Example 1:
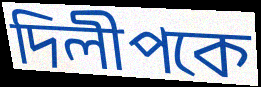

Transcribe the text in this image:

দিলীপকে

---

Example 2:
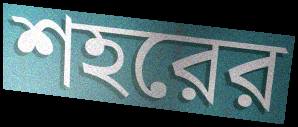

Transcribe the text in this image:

শহরের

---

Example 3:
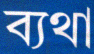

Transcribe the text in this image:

ব্যথা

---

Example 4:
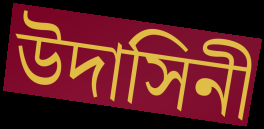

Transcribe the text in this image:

উদাসিনী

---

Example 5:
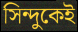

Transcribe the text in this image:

সিন্দুকেই